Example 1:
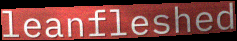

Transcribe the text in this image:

leanfleshed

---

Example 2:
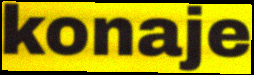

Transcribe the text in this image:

konaje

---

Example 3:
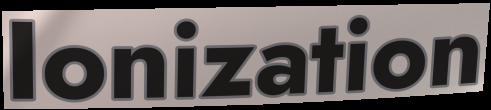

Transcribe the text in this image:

Ionization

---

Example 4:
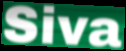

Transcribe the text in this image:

Siva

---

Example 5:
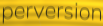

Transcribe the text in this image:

perversion